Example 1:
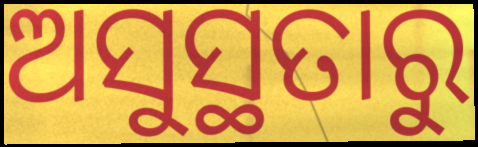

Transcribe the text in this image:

ଅସୁସ୍ଥତାରୁ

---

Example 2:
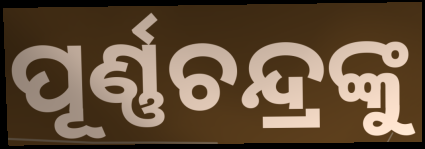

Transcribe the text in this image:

ପୂର୍ଣ୍ଣଚନ୍ଦ୍ରଙ୍କୁ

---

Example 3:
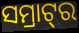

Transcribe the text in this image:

ସମ୍ରାଟ୍‌ର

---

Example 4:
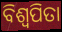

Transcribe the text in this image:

ବିଶ୍ଵପିତା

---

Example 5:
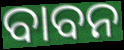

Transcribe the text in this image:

ବାବନ